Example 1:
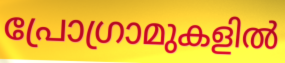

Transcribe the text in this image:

പ്രോഗ്രാമുകളിൽ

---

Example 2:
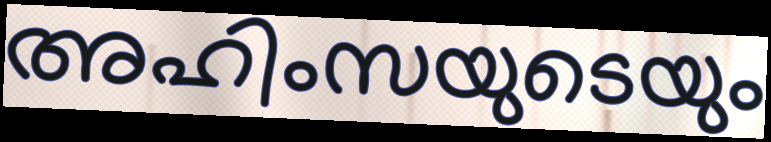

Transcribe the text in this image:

അഹിംസയുടെയും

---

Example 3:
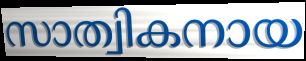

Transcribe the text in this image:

സാത്വികനായ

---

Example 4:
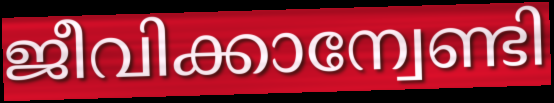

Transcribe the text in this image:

ജീവിക്കാന്വേണ്ടി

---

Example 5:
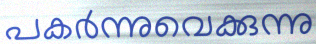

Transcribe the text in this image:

പകർന്നുവെക്കുന്നു